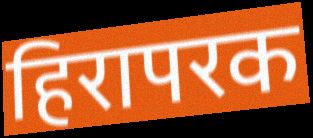
हिरापरक